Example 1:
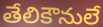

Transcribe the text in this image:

తేలికౌనులే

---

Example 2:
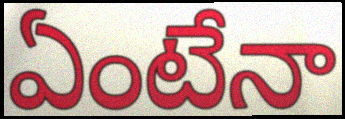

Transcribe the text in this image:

ఏంటేనా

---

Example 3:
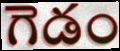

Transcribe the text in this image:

గెడం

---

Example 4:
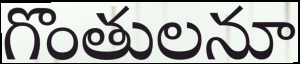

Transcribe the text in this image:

గొంతులనూ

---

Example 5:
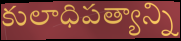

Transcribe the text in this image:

కులాధిపత్యాన్ని